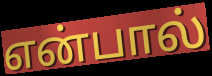
என்பால்